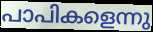
പാപികളെന്നു